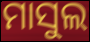
ମାସୁଲ